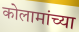
कोलामांच्या